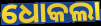
ଧୋକଲା